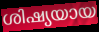
ശിഷ്യയായ